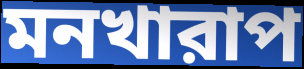
মনখারাপ